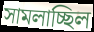
সামলাচ্ছিল